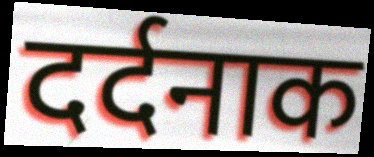
दर्दनाक